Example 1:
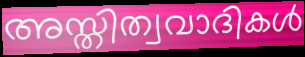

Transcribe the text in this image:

അസ്തിത്വവാദികൾ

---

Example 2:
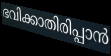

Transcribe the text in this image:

ഭവിക്കാതിരിപ്പാൻ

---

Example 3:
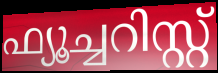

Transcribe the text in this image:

ഫ്യൂച്ചറിസ്റ്റ്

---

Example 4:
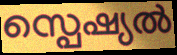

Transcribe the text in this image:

സ്പെഷ്യൽ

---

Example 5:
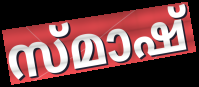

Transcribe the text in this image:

സ്മാഷ്